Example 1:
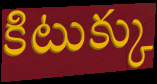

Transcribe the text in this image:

కిటుక్కు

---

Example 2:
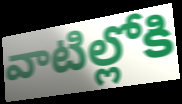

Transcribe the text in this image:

వాటిల్లోకి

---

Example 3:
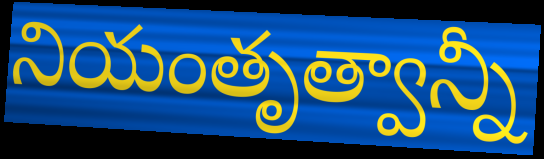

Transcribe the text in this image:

నియంతృత్వాన్నీ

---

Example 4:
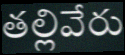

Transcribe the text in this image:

తల్లివేరు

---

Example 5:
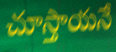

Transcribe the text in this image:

చూస్తాయనే